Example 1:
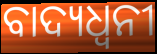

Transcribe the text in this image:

ବାଦ୍ୟଧ୍ୱନୀ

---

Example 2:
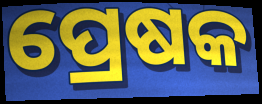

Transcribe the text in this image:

ପ୍ରେଷକ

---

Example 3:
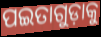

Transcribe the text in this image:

ପଇତାଗୁଡ଼ାକୁ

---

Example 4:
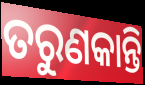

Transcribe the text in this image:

ତରୁଣକାନ୍ତି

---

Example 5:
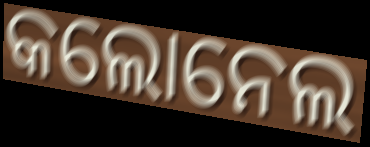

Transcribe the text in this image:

କଲୋନେଲ